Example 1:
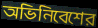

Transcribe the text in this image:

অভিনিবেশের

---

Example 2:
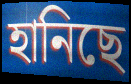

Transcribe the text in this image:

হানিছে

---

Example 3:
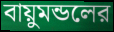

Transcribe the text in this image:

বায়ুমন্ডলের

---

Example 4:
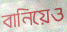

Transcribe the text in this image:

বানিয়েও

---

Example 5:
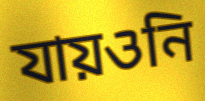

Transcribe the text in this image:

যায়ওনি